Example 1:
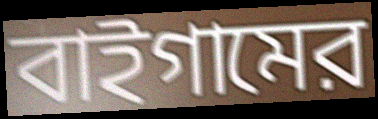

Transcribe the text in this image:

বাইগামের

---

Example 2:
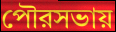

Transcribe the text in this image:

পৌরসভায়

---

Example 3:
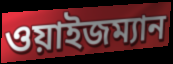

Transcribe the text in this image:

ওয়াইজম্যান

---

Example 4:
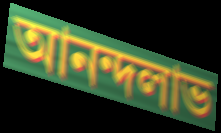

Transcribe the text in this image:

আনন্দলাভ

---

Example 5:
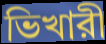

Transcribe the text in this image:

ভিখারী